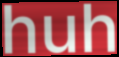
huh